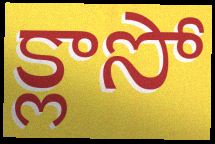
క్లాసో